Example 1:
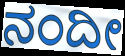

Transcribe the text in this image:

ನಂದೀ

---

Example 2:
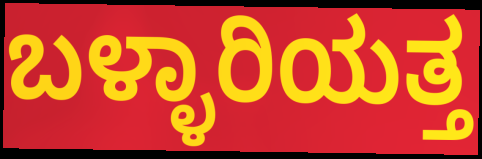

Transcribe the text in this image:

ಬಳ್ಳಾರಿಯತ್ತ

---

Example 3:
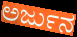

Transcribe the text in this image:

ಅರ್ಜುನ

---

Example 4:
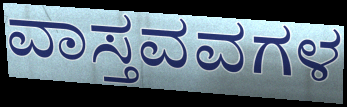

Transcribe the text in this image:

ವಾಸ್ತವವಗಳ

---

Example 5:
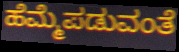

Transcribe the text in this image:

ಹೆಮ್ಮೆಪಡುವಂತೆ